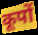
कूपों